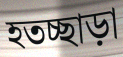
হতচ্ছাড়া